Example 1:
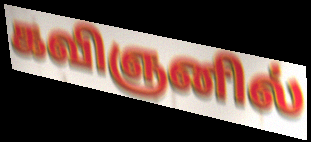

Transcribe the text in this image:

கவிஞனில்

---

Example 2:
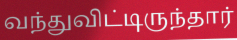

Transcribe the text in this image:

வந்துவிட்டிருந்தார்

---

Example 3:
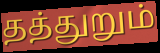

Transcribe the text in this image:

தத்துறும்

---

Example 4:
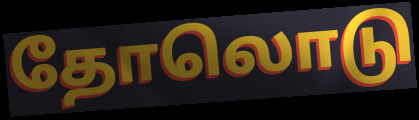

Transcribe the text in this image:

தோலொடு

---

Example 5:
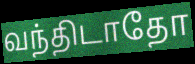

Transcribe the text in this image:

வந்திடாதோ